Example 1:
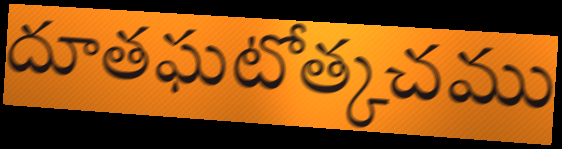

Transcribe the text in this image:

దూతఘటోత్కచము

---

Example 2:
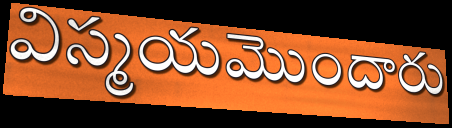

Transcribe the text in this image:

విస్మయమొందారు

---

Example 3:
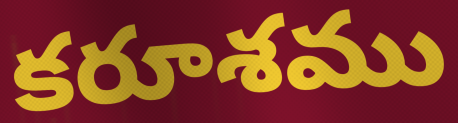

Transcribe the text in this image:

కరూశము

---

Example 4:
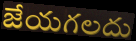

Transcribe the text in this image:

జేయగలదు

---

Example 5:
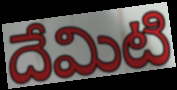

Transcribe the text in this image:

దేమిటి